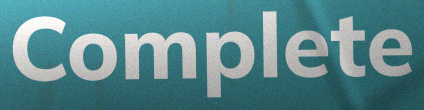
Complete